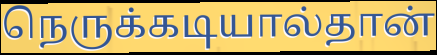
நெருக்கடியால்தான்